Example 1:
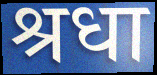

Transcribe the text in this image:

श्रधा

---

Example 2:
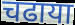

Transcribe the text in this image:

चढाया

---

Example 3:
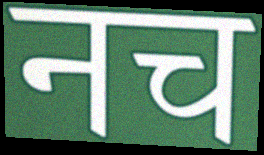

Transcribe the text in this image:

नच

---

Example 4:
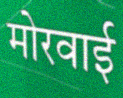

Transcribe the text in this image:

मोरवाई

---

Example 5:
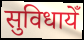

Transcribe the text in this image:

सुविधायेँ